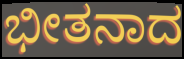
ಭೀತನಾದ